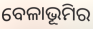
ବେଳାଭୂମିର